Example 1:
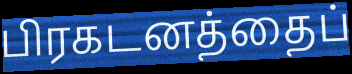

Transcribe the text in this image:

பிரகடனத்தைப்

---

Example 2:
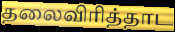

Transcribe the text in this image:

தலைவிரித்தாட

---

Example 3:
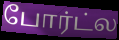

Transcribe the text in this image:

போர்ட்ல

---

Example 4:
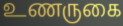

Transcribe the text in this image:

உணருகை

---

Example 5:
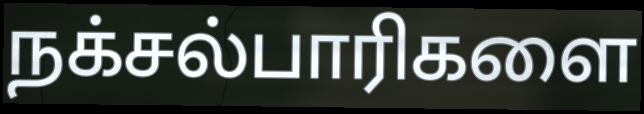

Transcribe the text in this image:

நக்சல்பாரிகளை